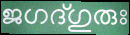
ജഗദ്ഗുരുഃ